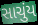
સાચુંય